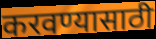
करवण्यासाठी